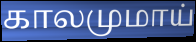
காலமுமாய்